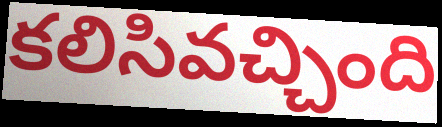
కలిసివచ్చింది